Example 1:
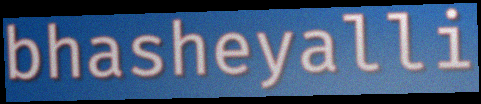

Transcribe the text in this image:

bhasheyalli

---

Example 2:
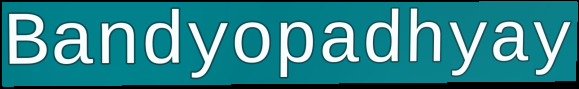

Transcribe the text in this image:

Bandyopadhyay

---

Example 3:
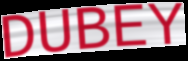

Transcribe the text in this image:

DUBEY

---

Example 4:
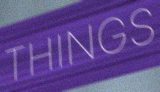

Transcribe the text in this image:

THINGS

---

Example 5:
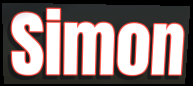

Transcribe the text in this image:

Simon